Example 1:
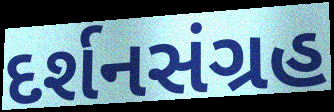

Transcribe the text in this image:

દર્શનસંગ્રહ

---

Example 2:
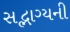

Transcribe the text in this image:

સદ્ભાગ્યની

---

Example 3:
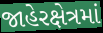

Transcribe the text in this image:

જાહેરક્ષેત્રમાં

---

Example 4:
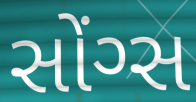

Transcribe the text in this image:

સોંગ્સ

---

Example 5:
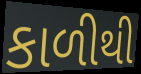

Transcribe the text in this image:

કાળીથી